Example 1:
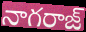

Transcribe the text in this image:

నాగరాజ్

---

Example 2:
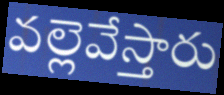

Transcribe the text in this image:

వల్లెవేస్తారు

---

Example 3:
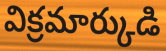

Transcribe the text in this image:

విక్రమార్కుడి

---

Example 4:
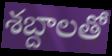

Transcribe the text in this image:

శబ్దాలతో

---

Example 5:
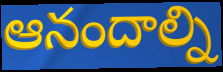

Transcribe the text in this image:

ఆనందాల్ని